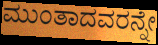
ಮುಂತಾದವರನ್ನೇ